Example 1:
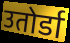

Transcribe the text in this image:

उतोर्डा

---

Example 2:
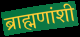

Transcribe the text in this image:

ब्राह्मणांशी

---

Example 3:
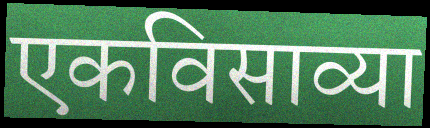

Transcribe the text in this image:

एकविसाव्या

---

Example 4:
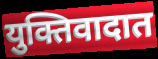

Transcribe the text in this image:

युक्तिवादात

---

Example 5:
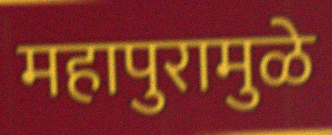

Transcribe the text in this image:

महापुरामुळे